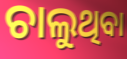
ଚାଲୁଥିବା